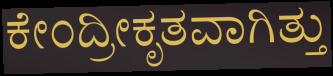
ಕೇಂದ್ರೀಕೃತವಾಗಿತ್ತು